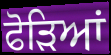
ਫੋੜਿਆਂ